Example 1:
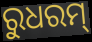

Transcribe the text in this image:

ରୁଧରମ୍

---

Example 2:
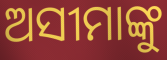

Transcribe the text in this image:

ଅସୀମାଙ୍କୁ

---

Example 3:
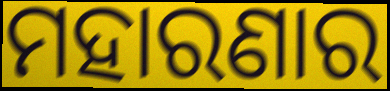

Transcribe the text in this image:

ମହାରଣାର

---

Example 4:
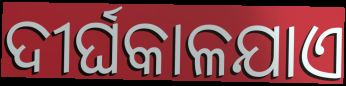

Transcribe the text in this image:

ଦୀର୍ଘକାଳଯାଏ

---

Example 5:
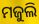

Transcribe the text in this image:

ମଜୁଲି